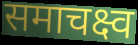
समाचक्ष्व